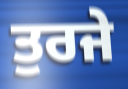
ਤੁਰਜੇ